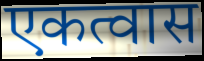
एकत्वास